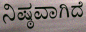
ನಿಷ್ಠವಾಗಿದೆ